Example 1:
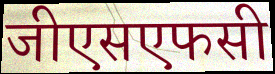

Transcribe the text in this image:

जीएसएफसी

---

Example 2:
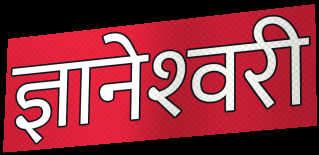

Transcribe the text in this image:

ज्ञानेश्‍वरी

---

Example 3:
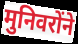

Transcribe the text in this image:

मुनिवरोंने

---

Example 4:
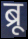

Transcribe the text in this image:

ब्रू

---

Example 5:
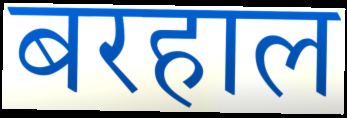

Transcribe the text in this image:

बरहाल